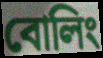
বোলিং